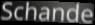
Schande